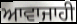
ਆਵਾਜਾਹੀ